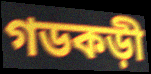
গডকড়ী